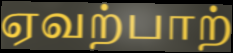
ஏவற்பாற்